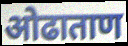
ओढाताण